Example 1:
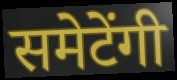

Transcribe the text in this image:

समेटेंगी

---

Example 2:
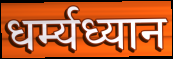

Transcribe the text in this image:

धर्म्यध्यान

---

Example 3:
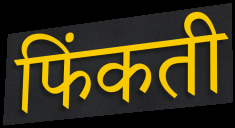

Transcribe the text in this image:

फिंकती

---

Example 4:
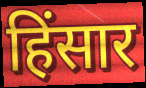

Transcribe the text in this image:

हिंसार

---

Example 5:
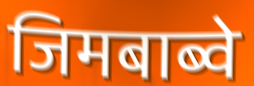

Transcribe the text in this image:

जिमबाब्वे